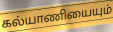
கல்யாணியையும்